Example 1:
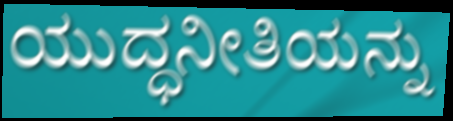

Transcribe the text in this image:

ಯುದ್ಧನೀತಿಯನ್ನು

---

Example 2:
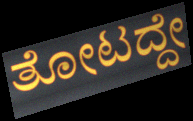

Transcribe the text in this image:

ತೋಟದ್ದೇ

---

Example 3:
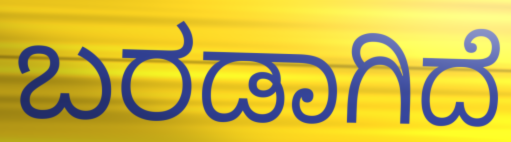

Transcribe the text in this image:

ಬರಡಾಗಿದೆ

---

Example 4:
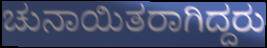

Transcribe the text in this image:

ಚುನಾಯಿತರಾಗಿದ್ದರು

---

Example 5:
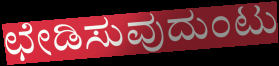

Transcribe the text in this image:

ಛೇಡಿಸುವುದುಂಟು